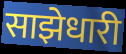
साझेधारी